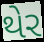
થેર